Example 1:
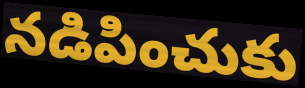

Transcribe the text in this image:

నడిపించుకు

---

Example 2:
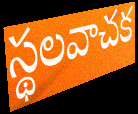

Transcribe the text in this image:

స్థలవాచక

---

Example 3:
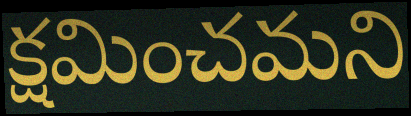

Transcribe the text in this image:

క్షమించమని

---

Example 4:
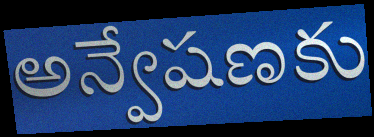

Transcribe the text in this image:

అన్వేషణకు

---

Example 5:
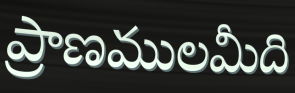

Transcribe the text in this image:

ప్రాణములమీది